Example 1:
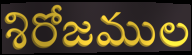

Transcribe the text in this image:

శిరోజముల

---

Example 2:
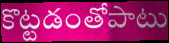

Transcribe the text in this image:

కొట్టడంతోపాటు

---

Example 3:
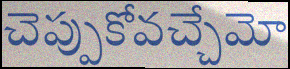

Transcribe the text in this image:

చెప్పుకోవచ్చేమో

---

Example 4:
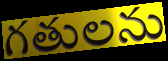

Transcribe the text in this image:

గతులను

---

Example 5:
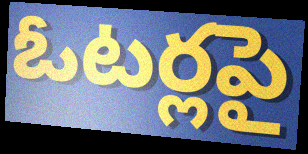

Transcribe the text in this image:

ఓటర్లపై